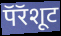
पॅरॅशूट